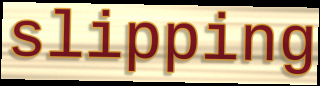
slipping